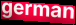
german